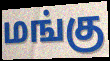
மங்கு